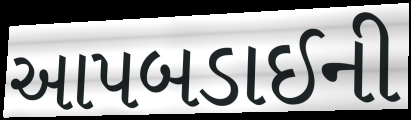
આપબડાઈની